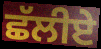
ਛੱਲੀਏ